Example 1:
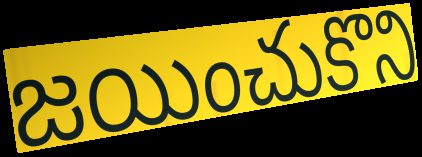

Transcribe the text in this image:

జయించుకొని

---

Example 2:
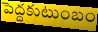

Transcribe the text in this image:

పెద్దకుటుంబం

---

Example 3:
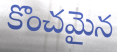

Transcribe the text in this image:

కొంచమైన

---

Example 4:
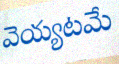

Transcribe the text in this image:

వెయ్యటమే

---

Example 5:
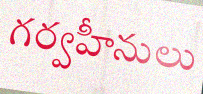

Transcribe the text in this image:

గర్వహీనులు